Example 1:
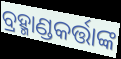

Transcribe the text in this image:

ବ୍ରହ୍ମାଣ୍ଡକର୍ତ୍ତାଙ୍କ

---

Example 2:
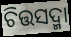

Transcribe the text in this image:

ଚିତ୍ତସଦ୍ମା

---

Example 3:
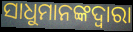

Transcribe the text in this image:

ସାଧୁମାନଙ୍କଦ୍ଵାରା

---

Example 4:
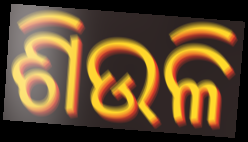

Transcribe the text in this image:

ଶିଉଳି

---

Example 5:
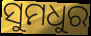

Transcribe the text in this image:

ସୁମଧୁର